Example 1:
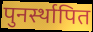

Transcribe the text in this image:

पुनर्स्थापित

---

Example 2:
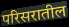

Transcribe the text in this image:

परिसरातील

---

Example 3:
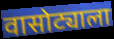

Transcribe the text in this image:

वासोट्याला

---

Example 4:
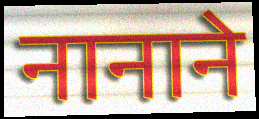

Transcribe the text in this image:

नानाने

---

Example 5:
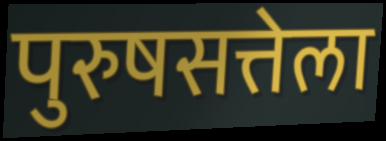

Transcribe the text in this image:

पुरुषसत्तेला